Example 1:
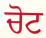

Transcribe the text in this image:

ਚੋਟ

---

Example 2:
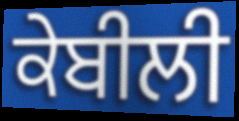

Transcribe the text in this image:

ਕੇਬੀਲੀ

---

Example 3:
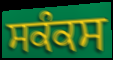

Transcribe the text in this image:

ਸਕੰਕਸ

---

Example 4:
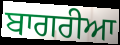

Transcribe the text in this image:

ਬਾਗਰੀਆ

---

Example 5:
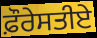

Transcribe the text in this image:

ਫ਼ੌਰੇਸਤੀਏ